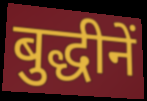
बुद्धीनें